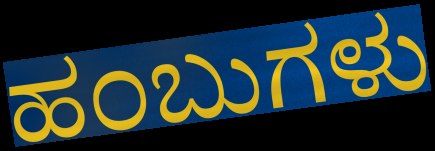
ಹಂಬುಗಳು